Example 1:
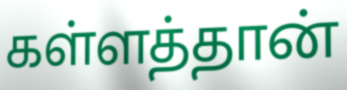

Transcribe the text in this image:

கள்ளத்தான்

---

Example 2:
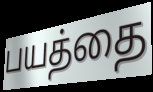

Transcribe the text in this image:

பயத்தை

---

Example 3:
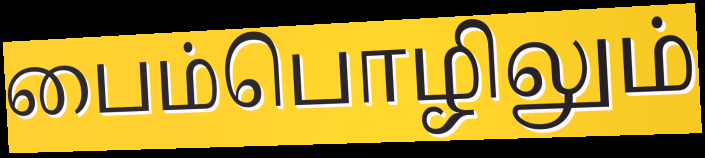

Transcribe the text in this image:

பைம்பொழிலும்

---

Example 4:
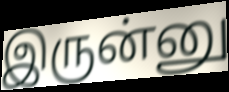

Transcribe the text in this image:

இருன்னு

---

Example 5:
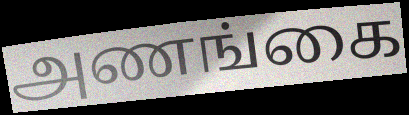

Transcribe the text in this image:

அணங்கை